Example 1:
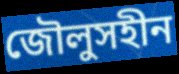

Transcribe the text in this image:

জৌলুসহীন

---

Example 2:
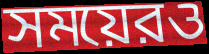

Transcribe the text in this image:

সময়েরও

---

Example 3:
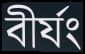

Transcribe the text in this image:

বীর্যং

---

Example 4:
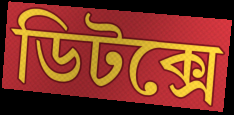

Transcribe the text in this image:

ডিটক্সে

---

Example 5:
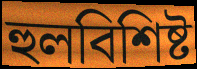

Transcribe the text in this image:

হুলবিশিষ্ট